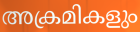
അക്രമികളും